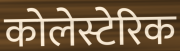
कोलेस्टेरिक